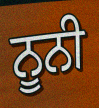
ਨੂਨੀ